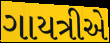
ગાયત્રીએ